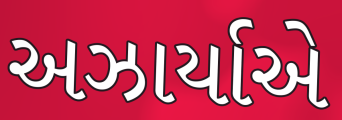
અઝાર્યાએ